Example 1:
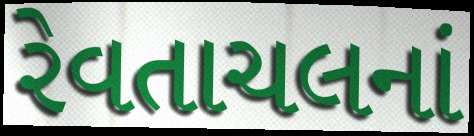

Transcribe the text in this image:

રેવતાચલનાં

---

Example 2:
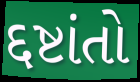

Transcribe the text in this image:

દ્દષ્ટાંતો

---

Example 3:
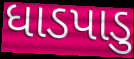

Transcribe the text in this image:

ધાડપાડુ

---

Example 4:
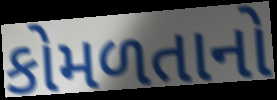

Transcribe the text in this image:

કોમળતાનો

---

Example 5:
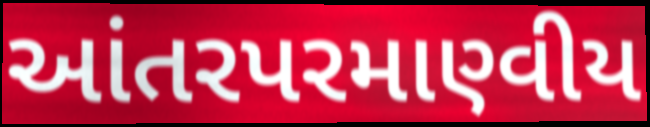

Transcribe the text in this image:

આંતરપરમાણ્વીય